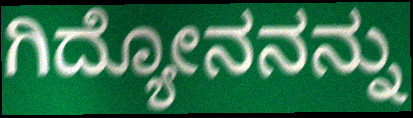
ಗಿದ್ಯೋನನನ್ನು